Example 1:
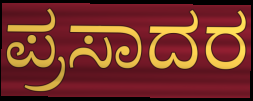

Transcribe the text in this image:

ಪ್ರಸಾದರ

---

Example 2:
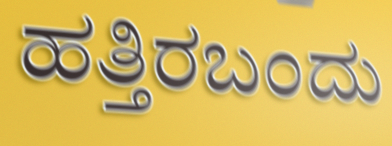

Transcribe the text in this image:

ಹತ್ತಿರಬಂದು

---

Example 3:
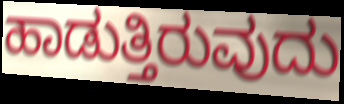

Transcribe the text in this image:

ಹಾಡುತ್ತಿರುವುದು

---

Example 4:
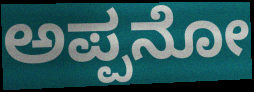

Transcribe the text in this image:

ಅಪ್ಪನೋ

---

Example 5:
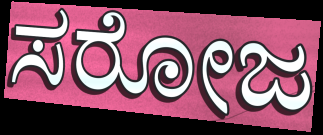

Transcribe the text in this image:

ಸರೋಜ